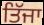
ਤਿੱਜਾ